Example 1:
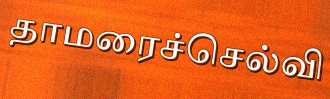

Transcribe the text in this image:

தாமரைச்செல்வி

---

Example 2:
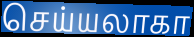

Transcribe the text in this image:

செய்யலாகா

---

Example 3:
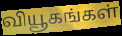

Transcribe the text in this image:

வியூகங்கள்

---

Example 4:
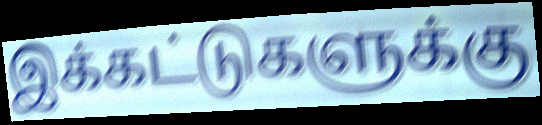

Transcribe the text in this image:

இக்கட்டுகளுக்கு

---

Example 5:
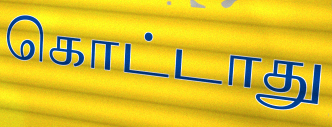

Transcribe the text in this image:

கொட்டாது